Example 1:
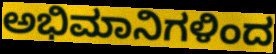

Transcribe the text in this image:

ಅಭಿಮಾನಿಗಳಿಂದ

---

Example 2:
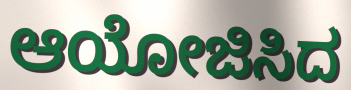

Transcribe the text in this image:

ಆಯೋಜಿಸಿದ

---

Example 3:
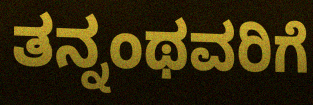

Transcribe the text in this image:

ತನ್ನಂಥವರಿಗೆ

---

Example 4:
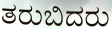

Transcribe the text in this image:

ತರುಬಿದರು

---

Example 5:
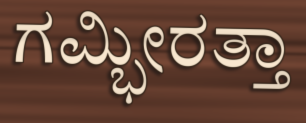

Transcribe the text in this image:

ಗಮ್ಭೀರತ್ತಾ